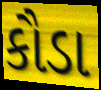
કૌડા